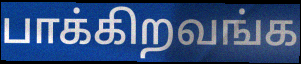
பாக்கிறவங்க